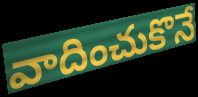
వాదించుకొనే